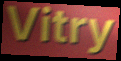
Vitry